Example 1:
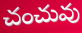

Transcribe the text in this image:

చంచువు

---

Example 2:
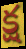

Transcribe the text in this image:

క్ష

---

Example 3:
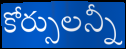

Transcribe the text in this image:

కోర్సులన్నీ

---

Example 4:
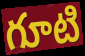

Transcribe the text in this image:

గూటి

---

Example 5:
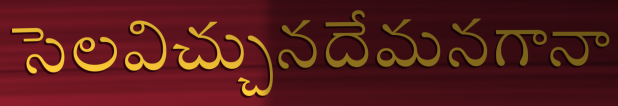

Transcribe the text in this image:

సెలవిచ్చునదేమనగానా